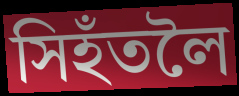
সিহঁতলৈ